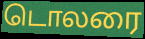
டொலரை